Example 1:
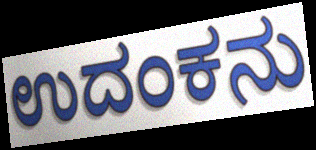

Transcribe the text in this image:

ಉದಂಕನು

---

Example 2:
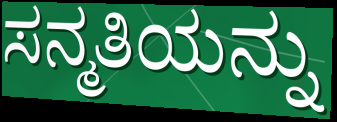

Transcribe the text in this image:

ಸನ್ಮತಿಯನ್ನು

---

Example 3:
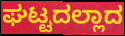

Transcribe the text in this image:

ಘಟ್ಟದಲ್ಲಾದ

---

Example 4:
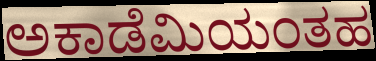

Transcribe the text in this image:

ಅಕಾಡೆಮಿಯಂತಹ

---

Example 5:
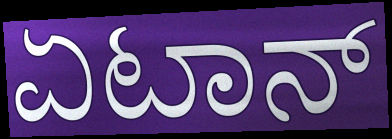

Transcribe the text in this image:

ಏಟಾನ್